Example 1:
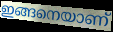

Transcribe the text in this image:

ഇങ്ങനെയാണ്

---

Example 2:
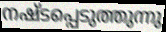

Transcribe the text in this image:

നഷ്ടപ്പെടുത്തുന്നു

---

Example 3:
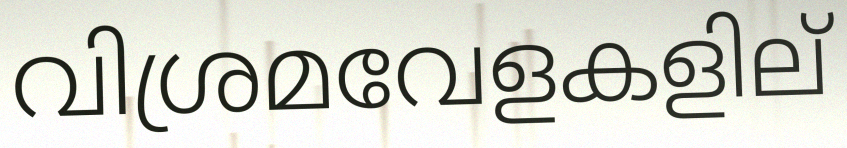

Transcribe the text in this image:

വിശ്രമവേളകളില്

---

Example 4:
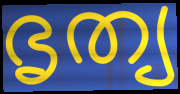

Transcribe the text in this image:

ഭൃത്യ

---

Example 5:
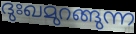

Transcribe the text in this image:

ദുഃഖമുറങ്ങുന്ന